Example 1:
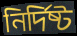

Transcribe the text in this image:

নিৰ্দিষ্ট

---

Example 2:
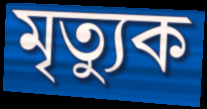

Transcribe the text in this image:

মৃত্যুক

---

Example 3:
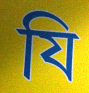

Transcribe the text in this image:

যি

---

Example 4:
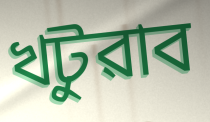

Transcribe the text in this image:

খটুৱাব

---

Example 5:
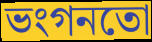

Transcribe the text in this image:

ভংগনতো